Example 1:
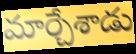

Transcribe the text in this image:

మార్చేశాడు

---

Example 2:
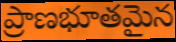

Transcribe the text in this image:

ప్రాణభూతమైన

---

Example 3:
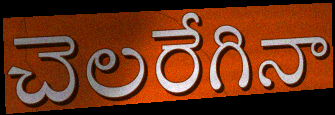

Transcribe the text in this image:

చెలరేగినా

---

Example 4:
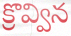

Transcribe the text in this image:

క్రొవ్విన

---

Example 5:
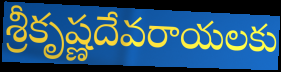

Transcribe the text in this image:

శ్రీకృష్ణదేవరాయలకు